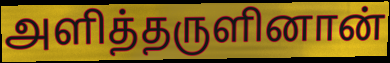
அளித்தருளினான்